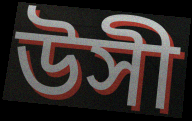
উসী